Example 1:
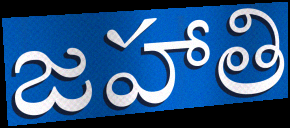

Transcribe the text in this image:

జహాతి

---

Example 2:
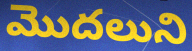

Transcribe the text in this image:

మొదలుని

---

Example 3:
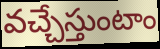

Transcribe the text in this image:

వచ్చేస్తుంటాం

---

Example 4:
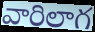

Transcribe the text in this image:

వారిలాగ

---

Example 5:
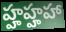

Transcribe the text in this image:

హ్హహ్హహా